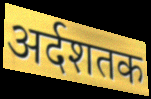
अर्दशतक